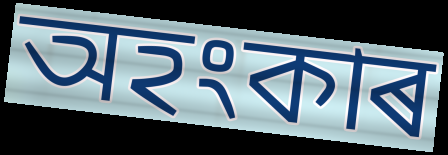
অহংকাৰ